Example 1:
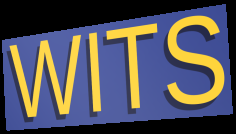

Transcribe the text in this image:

WITS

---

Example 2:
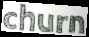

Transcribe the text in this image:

churn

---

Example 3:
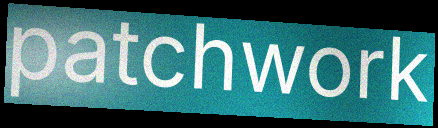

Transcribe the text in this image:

patchwork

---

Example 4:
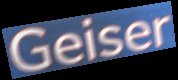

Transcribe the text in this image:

Geiser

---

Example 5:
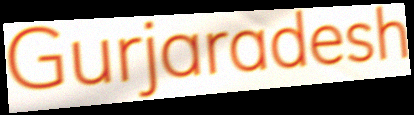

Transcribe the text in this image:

Gurjaradesh